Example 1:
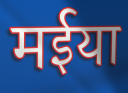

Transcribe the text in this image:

मईया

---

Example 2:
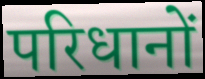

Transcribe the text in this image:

परिधानों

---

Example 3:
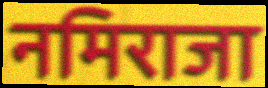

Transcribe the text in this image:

नमिराजा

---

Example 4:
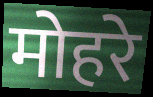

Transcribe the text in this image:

मोहरे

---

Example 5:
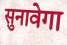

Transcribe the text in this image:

सुनावेगा